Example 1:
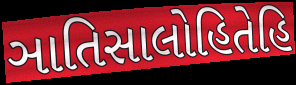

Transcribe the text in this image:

ઞાતિસાલોહિતેહિ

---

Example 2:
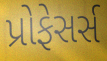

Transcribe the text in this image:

પ્રોફેસર્સ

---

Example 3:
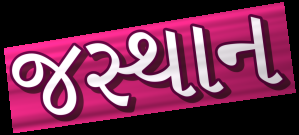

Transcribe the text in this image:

જસ્થાન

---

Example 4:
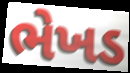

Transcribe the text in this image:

ભેખડ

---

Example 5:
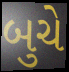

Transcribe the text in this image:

બુચે